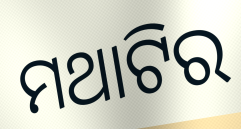
ମଥାଟିର